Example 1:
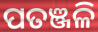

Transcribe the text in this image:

ପତଞ୍ଜଳି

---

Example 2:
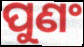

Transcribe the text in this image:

ପୁଣଂ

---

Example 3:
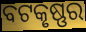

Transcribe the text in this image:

ବଟକୃଷ୍ଣର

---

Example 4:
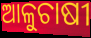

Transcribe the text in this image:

ଆଳୁଚାଷୀ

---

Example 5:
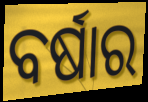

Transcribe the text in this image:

ବର୍ଷାର